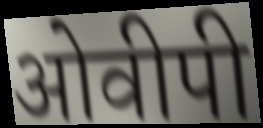
ओवीपी